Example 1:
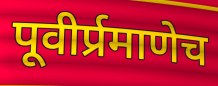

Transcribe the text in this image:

पूवीर्प्रमाणेच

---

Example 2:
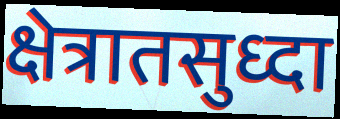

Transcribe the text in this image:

क्षेत्रातसुध्दा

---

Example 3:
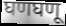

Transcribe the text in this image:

घणघणू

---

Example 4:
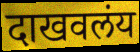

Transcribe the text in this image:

दाखवलंय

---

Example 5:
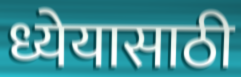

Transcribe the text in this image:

ध्येयासाठी